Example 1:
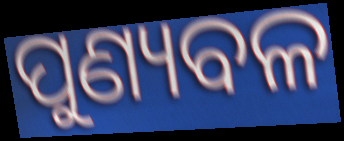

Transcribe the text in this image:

ପୁଣ୍ୟବଳ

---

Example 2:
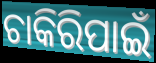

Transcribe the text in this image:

ଚାକିରିପାଇଁ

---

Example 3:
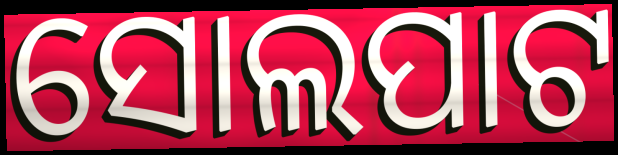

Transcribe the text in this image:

ସୋଲପାଟ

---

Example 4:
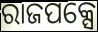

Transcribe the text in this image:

ରାଜପକ୍ସେ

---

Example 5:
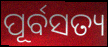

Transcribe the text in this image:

ପୂର୍ବସତ୍ୟ